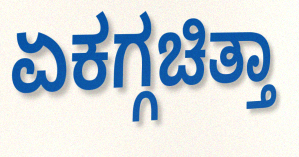
ಏಕಗ್ಗಚಿತ್ತಾ